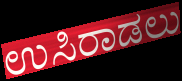
ಉಸಿರಾಡಲು